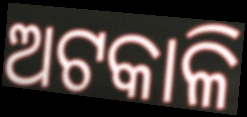
ଅଟକାଳି